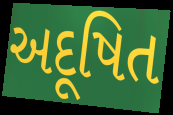
અદૂષિત